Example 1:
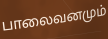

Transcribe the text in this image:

பாலைவனமும்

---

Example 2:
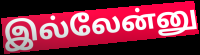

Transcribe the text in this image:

இல்லேன்னு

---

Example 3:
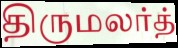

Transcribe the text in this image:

திருமலர்த்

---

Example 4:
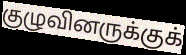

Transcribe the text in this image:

குழுவினருக்குக்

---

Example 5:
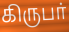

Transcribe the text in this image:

கிருபர்